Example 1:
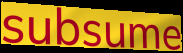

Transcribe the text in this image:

subsume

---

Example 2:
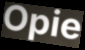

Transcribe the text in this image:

Opie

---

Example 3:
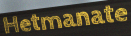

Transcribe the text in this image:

Hetmanate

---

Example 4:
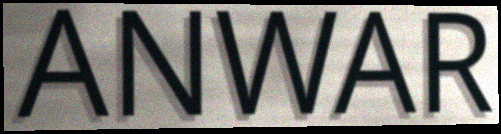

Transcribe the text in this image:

ANWAR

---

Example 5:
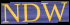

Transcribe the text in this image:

NDW